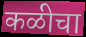
कळीचा